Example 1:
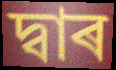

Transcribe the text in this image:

দ্বাৰ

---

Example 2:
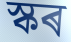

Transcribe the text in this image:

স্কৰ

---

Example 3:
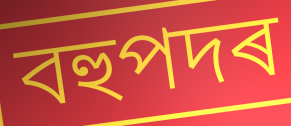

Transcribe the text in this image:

বহুপদৰ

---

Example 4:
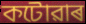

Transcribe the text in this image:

কটোৱাৰ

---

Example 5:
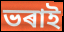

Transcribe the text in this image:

ভৰাই